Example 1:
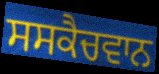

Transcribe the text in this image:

ਸਸਕੈਚਵਾਨ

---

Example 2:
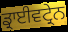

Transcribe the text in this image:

ਡ੍ਰਾਈਵਟ੍ਰੇਨ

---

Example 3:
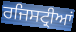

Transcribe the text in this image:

ਰਜਿਸਟ੍ਰੀਆਂ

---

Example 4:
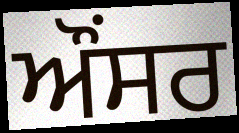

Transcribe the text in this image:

ਔਂਸਰ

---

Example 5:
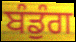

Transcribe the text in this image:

ਬੰਡੁੰਗ